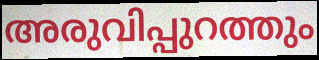
അരുവിപ്പുറത്തും